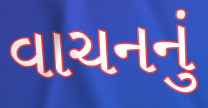
વાચનનું